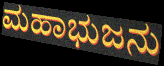
ಮಹಾಭುಜನು